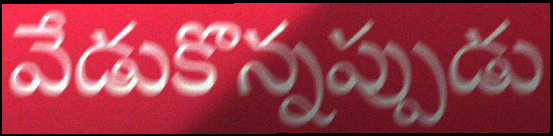
వేడుకొన్నప్పుడు